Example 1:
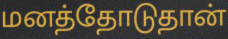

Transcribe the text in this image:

மனத்தோடுதான்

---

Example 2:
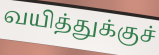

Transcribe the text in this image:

வயித்துக்குச்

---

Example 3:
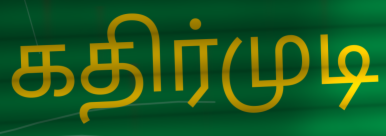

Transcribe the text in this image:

கதிர்முடி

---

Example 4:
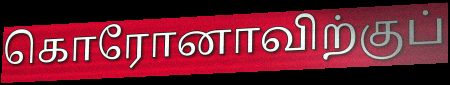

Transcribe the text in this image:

கொரோனாவிற்குப்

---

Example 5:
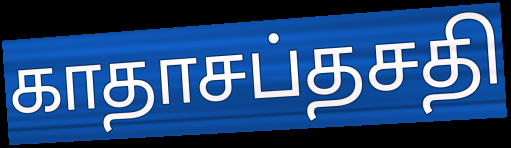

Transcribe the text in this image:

காதாசப்தசதி